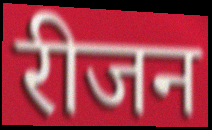
रीजन